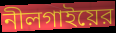
নীলগাইয়ের